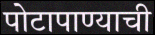
पोटापाण्याची